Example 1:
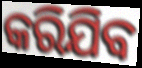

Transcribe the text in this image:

କରିଯିବ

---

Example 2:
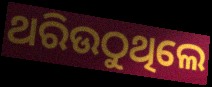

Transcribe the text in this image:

ଥରିଉଠୁଥିଲେ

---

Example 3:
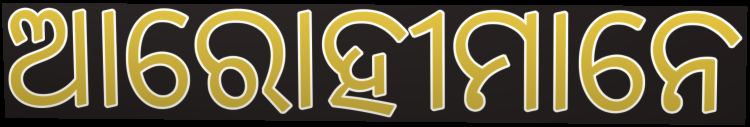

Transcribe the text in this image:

ଆରୋହୀମାନେ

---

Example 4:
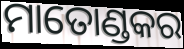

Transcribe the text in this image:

ମାତୋଣ୍ଡକର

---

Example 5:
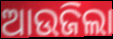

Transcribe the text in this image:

ଆଉଜିଲା